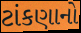
ટાંકણાનો